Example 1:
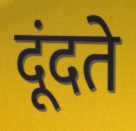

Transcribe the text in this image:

दूंदते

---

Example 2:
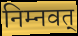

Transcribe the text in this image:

निम्नवत्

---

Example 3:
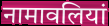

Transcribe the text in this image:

नामावलियां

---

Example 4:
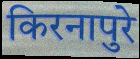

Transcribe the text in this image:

किरनापुरे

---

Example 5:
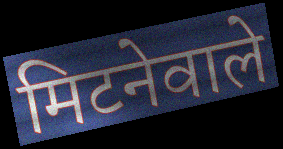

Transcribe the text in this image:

मिटनेवाले